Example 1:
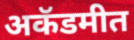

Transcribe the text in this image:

अकॅडमीत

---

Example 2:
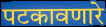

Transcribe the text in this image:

पटकावणारे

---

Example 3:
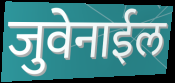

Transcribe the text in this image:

जुवेनाईल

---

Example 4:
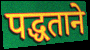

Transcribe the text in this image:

पद्धताने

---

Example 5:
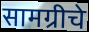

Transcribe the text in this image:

सामग्रीचे